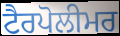
ਟੈਰਪੋਲੀਮਰ